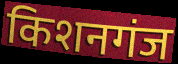
किशनगंज